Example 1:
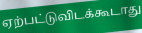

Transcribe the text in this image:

ஏற்பட்டுவிடக்கூடாது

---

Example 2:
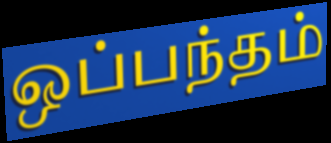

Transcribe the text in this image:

ஒப்பந்தம்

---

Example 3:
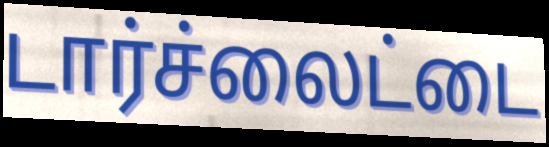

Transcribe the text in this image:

டார்ச்லைட்டை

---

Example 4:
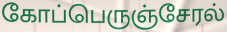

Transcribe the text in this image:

கோப்பெருஞ்சேரல்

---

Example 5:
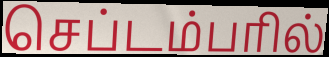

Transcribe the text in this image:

செப்டம்பரில்